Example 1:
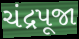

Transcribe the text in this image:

ચંદ્રપૂજા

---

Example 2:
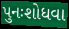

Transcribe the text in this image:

પુનઃશોધવા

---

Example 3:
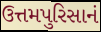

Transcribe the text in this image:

ઉત્તમપુરિસાનં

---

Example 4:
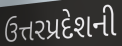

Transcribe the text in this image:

ઉત્તરપ્રદેશની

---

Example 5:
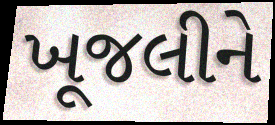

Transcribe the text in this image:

ખૂજલીને